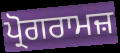
ਪ੍ਰੋਗਰਾਮਜ਼